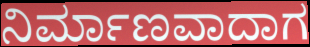
ನಿರ್ಮಾಣವಾದಾಗ